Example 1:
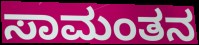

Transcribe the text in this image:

ಸಾಮಂತನ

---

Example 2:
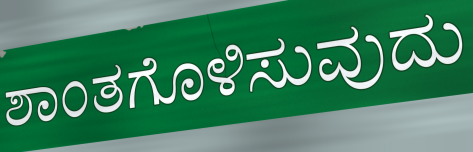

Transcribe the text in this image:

ಶಾಂತಗೊಳಿಸುವುದು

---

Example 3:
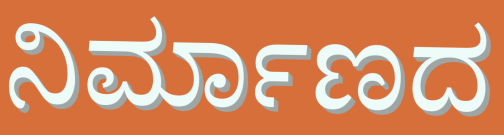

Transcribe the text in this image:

ನಿರ್ಮಾಣದ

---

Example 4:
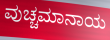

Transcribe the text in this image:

ವುಚ್ಚಮಾನಾಯ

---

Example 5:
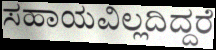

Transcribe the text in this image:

ಸಹಾಯವಿಲ್ಲದಿದ್ದರೆ